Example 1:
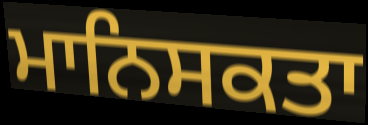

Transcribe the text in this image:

ਮਾਨਿਸਕਤਾ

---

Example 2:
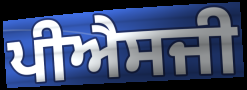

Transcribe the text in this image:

ਪੀਐਸਜੀ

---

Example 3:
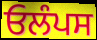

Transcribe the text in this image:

ਓਲੰਪਸ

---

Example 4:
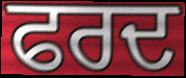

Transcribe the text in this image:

ਫਰਦ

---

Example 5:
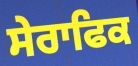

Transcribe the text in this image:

ਸੇਰਾਫਿਕ